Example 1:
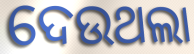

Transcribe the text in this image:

ଦେଉଥଲା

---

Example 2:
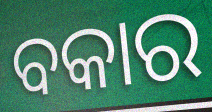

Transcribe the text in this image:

ବକାର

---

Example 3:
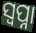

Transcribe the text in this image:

ସ୍ୱପ୍ନା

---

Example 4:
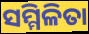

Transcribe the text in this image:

ସମ୍ମିଳିତା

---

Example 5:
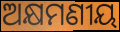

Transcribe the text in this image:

ଅକ୍ଷମଣୀୟ